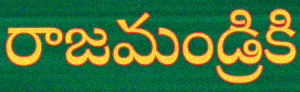
రాజమండ్రికి